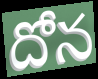
దోన